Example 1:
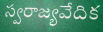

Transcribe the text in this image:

స్వరాజ్యవేదిక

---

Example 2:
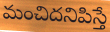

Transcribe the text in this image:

మంచిదనిపిస్తే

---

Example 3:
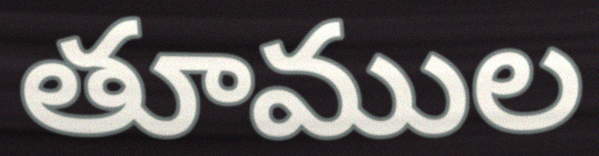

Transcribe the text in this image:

తూముల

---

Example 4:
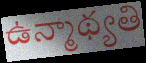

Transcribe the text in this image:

ఉన్మాథ్యతి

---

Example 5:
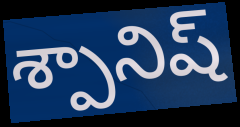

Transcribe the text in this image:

శ్పానిష్